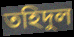
তহিদুল